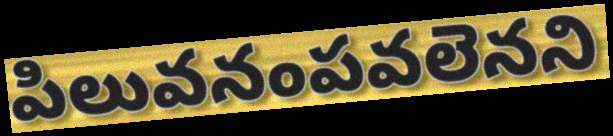
పిలువనంపవలెనని